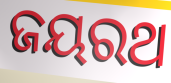
ଜୟରଥ